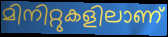
മിനിറ്റുകളിലാണ്